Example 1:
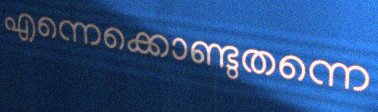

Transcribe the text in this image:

എന്നെക്കൊണ്ടുതന്നെ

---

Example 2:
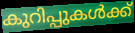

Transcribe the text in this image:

കുറിപ്പുകൾക്ക്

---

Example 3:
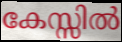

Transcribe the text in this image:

കേസ്സിൽ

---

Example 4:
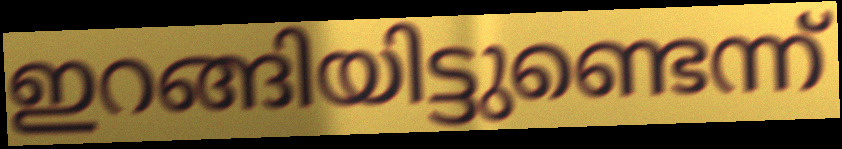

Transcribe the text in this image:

ഇറങ്ങിയിട്ടുണ്ടെന്ന്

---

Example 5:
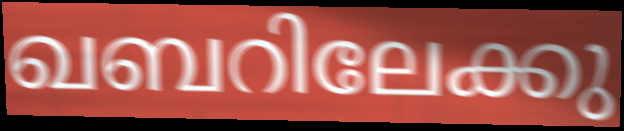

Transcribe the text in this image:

ഖബറിലേക്കു